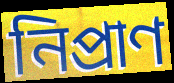
নিপ্রাণ